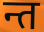
न्त